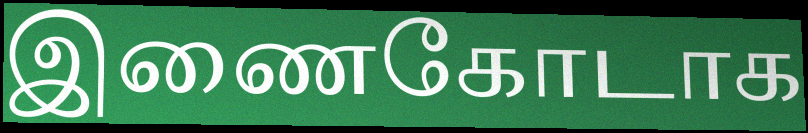
இணைகோடாக